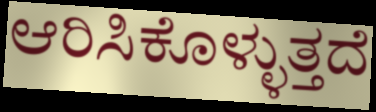
ಆರಿಸಿಕೊಳ್ಳುತ್ತದೆ